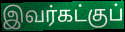
இவர்கட்குப்